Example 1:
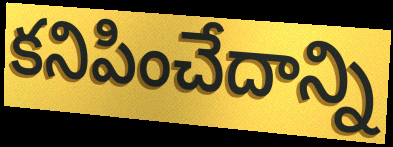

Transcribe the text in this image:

కనిపించేదాన్ని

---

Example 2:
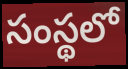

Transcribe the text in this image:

సంస్థలో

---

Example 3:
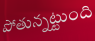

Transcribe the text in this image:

పోతున్నట్టుంది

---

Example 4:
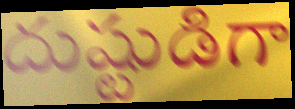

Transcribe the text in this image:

దుష్టుడిగా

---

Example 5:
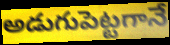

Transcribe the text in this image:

అడుగుపెట్టగానే